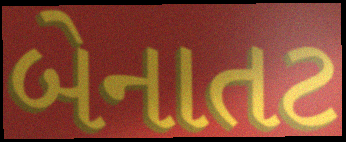
બેનાતટ